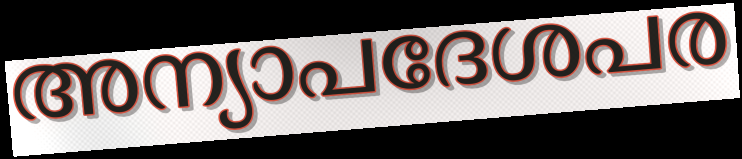
അന്യാപദേശപര